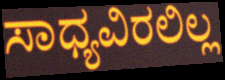
ಸಾಧ್ಯವಿರಲಿಲ್ಲ